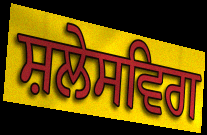
ਸ਼ਲੇਸਵਿਗ